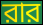
রার